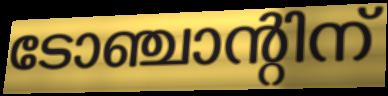
ടോഞ്ചാന്റിന്